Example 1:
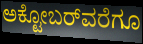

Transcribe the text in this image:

ಅಕ್ಟೋಬರ್‌ವರೆಗೂ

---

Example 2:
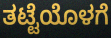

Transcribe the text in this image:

ತಟ್ಟೆಯೊಳಗೆ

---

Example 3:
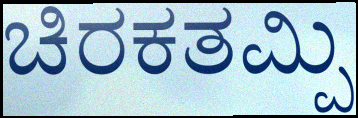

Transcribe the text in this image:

ಚಿರಕತಮ್ಪಿ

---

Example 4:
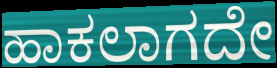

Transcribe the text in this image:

ಹಾಕಲಾಗದೇ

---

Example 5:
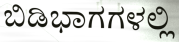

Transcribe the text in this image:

ಬಿಡಿಭಾಗಗಳಲ್ಲಿ